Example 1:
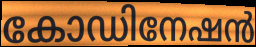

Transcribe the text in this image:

കോഡിനേഷൻ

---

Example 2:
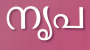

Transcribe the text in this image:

നൃപ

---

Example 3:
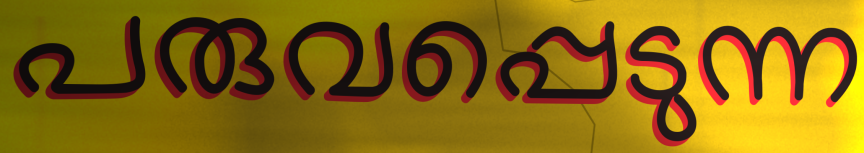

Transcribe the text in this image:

പരുവപ്പെടുന്ന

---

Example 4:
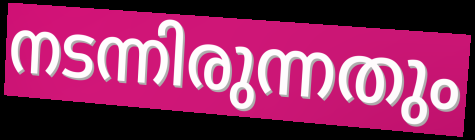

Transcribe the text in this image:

നടന്നിരുന്നതും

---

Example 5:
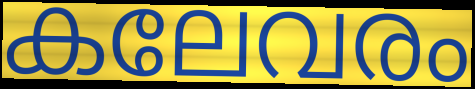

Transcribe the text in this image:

കലേവരം